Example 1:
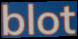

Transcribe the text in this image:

blot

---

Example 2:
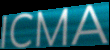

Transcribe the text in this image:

ICMA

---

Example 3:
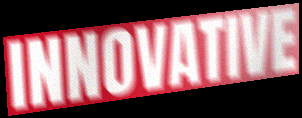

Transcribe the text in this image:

INNOVATIVE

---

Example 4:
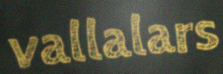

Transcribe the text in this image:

vallalars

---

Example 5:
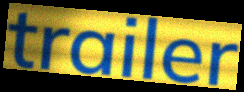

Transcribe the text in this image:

trailer